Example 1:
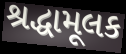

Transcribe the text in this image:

શ્રદ્ધામૂલક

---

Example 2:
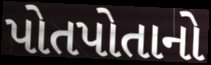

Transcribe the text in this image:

પોતપોતાનો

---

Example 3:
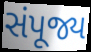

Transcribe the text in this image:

સંપૂજ્ય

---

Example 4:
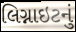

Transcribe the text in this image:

લિગ્નાઇટનું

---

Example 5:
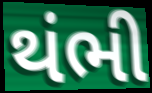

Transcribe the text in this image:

થંભી